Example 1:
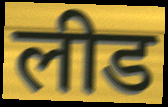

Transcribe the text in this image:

लीड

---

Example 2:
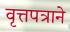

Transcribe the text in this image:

वृत्तपत्राने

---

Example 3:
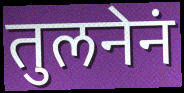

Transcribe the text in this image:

तुलनेनं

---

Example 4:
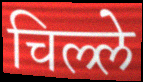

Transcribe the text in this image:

चिल्ले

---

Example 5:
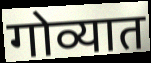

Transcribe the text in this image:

गोव्यात